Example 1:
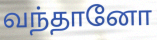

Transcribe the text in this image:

வந்தானோ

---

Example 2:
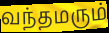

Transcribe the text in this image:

வந்தமரும்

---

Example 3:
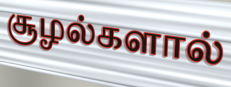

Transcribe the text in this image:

சூழல்களால்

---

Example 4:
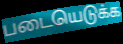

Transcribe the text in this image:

படையெடுக்க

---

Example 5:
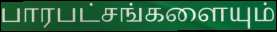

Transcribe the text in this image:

பாரபட்சங்களையும்